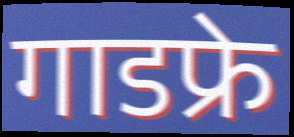
गाडफ्रे